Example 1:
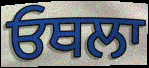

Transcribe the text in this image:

ਓਥਲਾ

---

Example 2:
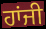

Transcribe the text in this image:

ਹਾਂਜੀ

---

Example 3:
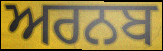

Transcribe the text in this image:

ਅਰਨਬ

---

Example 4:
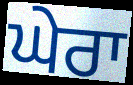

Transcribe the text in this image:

ਘੇਰਾ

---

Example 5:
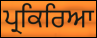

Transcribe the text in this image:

ਪ੍ਰਕਿਰਿਆ